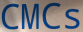
CMCs